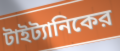
টাইট্যানিকের